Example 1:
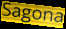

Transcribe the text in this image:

Sagona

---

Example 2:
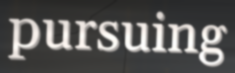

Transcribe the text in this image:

pursuing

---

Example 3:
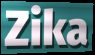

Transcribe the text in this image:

Zika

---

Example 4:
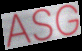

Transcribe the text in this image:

ASG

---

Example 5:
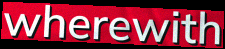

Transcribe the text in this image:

wherewith